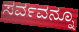
ಸರ್ವವನ್ನೂ